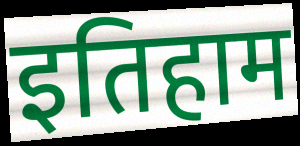
इतिहाम